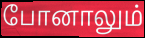
போனாலும்